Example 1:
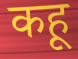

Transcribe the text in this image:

कहू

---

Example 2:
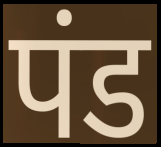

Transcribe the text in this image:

पंड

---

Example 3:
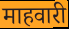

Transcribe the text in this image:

माहवारी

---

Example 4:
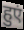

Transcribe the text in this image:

हुएं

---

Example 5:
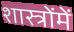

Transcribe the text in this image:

शास्त्रोंमें